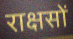
राक्षसों